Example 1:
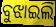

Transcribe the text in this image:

ବୁଝାଇଲି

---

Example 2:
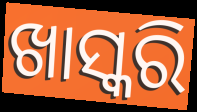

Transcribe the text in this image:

ଖାସ୍କରି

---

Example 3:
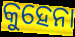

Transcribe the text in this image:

କୁହେନା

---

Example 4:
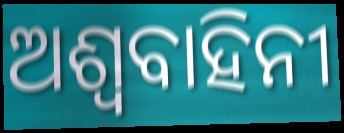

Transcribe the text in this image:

ଅଶ୍ୱବାହିନୀ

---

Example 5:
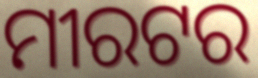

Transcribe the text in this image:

ମୀରଟର